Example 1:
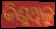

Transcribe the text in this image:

କିଣୁଥିଲୁ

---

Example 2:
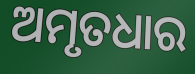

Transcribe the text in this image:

ଅମୃତଧାର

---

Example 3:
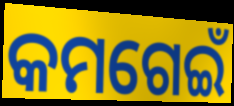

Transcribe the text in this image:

କମଗେଇଁ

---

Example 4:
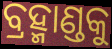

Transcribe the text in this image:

ବ୍ରହ୍ମାଣ୍ଡକୁ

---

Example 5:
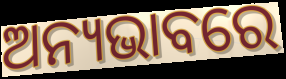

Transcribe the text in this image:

ଅନ୍ୟଭାବରେ